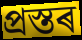
প্ৰস্তৰ